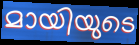
മായിയുടെ